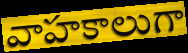
వాహకాలుగా